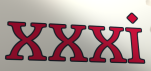
xxxi